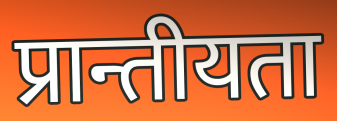
प्रान्तीयता